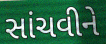
સાંચવીને